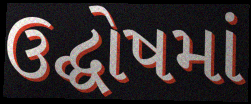
ઉદ્ઘોષમાં